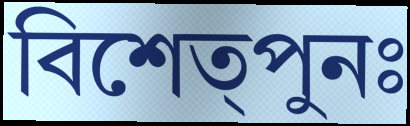
বিশেত্পুনঃ